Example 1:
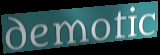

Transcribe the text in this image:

demotic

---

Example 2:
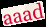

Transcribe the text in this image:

aaad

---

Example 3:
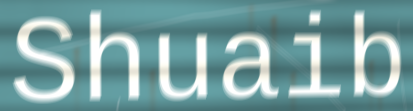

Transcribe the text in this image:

Shuaib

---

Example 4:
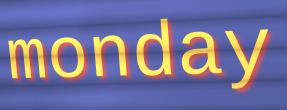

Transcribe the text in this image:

monday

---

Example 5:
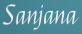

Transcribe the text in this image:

Sanjana